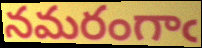
నమరంగాఁ